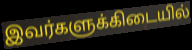
இவர்களுக்கிடையில்